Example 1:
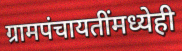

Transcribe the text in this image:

ग्रामपंचायतींमध्येही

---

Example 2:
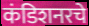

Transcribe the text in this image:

कंडिशनरचे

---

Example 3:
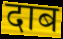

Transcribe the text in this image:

दाब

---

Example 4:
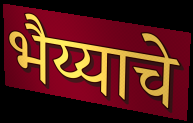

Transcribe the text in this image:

भैय्याचे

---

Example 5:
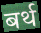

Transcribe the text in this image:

बर्थ